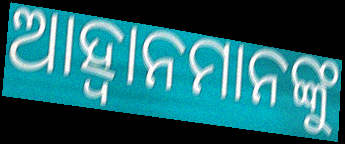
ଆହ୍ୱାନମାନଙ୍କୁ